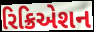
રિક્રિએશન